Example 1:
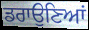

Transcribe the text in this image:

ਡਰਾਉਣਿਆਂ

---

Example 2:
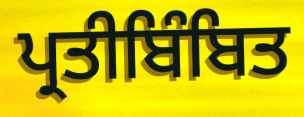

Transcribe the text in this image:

ਪ੍ਰਤੀਬਿੰਬਿਤ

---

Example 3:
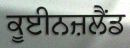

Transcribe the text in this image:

ਕੂਈਨਜ਼ਲੈਂਡ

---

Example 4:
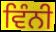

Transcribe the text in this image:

ਵਿੰਨੀ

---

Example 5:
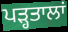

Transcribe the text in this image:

ਪੜ੍ਹਤਾਲਾਂ